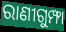
ରାଣୀଗୁମ୍ଫା